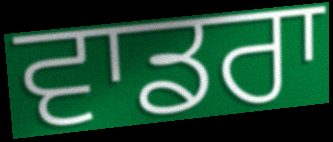
ਵਾਡਰਾ